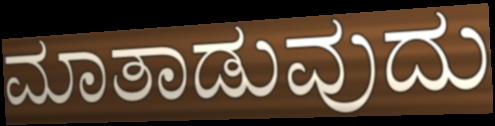
ಮಾತಾಡುವುದು